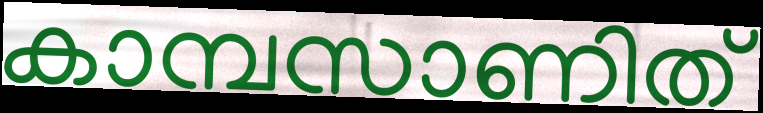
കാമ്പസാണിത്